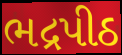
ભદ્રપીઠ